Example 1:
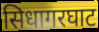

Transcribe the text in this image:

सिधागरघाट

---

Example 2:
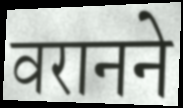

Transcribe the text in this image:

वरानने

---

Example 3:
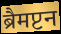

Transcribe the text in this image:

ब्रैमप्टन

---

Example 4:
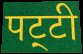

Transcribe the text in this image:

पट्‌टी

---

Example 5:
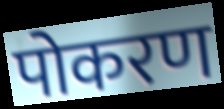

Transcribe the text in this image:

पोकरण